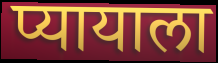
प्यायाला